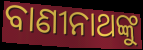
ବାଣୀନାଥଙ୍କୁ